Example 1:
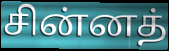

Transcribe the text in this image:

சின்னத்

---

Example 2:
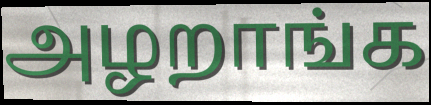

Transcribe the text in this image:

அழறாங்க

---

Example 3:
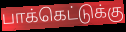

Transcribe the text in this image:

பாக்கெட்டுக்கு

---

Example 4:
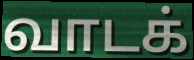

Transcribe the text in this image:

வாடக்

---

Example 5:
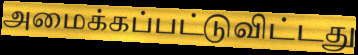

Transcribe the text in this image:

அமைக்கப்பட்டுவிட்டது